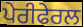
ਪੇਰੀਫੇਰਲ